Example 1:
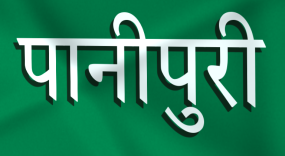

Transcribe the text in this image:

पानीपुरी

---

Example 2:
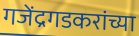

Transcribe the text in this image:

गजेंद्रगडकरांच्या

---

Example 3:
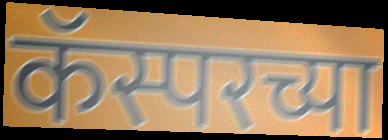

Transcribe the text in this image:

कॅस्परच्या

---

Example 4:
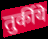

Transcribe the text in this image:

तुर्कीये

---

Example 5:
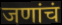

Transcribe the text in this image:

जणांचं